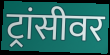
ट्रांसीवर